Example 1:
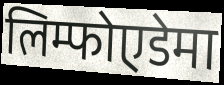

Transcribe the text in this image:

लिम्फोएडेमा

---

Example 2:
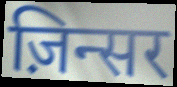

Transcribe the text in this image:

ज़िन्सर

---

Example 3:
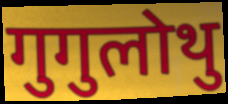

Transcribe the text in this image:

गुगुलोथु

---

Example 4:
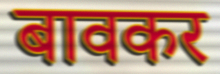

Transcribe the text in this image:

बावकर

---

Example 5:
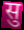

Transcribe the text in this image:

सु